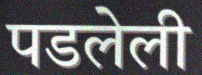
पडलेली